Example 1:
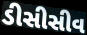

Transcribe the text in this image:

ડીસીસીવ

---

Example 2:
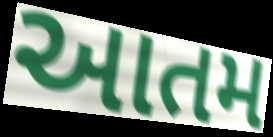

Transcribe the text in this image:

આતમ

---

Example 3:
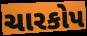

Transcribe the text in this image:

ચારકોપ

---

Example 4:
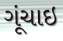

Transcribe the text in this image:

ગૂંચાઇ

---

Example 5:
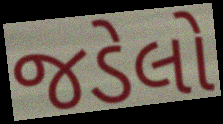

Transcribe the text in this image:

જડેલો